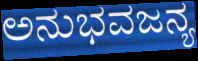
ಅನುಭವಜನ್ಯ